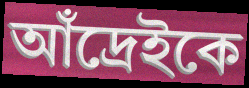
আঁদ্রেইকে